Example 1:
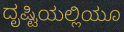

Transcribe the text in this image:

ದೃಷ್ಟಿಯಲ್ಲಿಯೂ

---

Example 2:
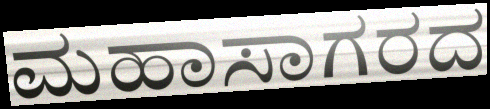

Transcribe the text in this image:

ಮಹಾಸಾಗರದ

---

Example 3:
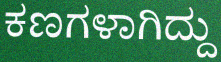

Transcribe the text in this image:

ಕಣಗಳಾಗಿದ್ದು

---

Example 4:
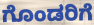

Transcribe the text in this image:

ಗೊಂಡರಿಗೆ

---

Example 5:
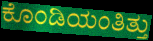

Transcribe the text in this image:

ಕೊಂಡಿಯಂತಿತ್ತು